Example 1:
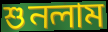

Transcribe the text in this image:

শুনলাম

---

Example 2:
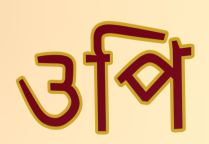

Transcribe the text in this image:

ওপি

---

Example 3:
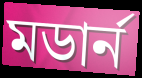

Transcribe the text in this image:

মডার্ন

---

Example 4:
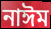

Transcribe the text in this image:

নাঈম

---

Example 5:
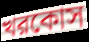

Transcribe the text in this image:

খরকোস